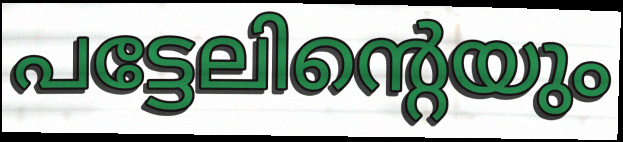
പട്ടേലിന്റെയും